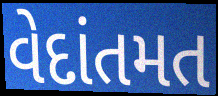
વેદાંતમત